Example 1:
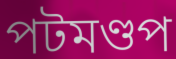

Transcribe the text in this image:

পটমণ্ডপ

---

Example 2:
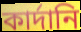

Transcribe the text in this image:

কার্দানি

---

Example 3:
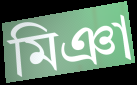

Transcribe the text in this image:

মিঞা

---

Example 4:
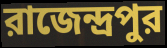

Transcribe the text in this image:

রাজেন্দ্রপুর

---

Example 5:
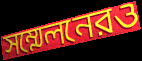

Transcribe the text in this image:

সম্মেলনেরও